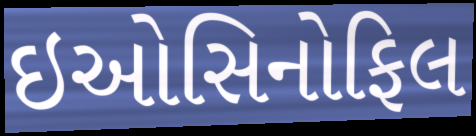
ઇઓસિનોફિલ